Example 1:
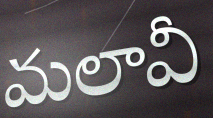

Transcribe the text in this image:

మలావీ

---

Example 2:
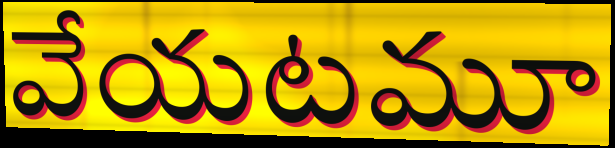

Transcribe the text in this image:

వేయటమూ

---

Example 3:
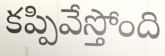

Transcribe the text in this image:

కప్పివేస్తోంది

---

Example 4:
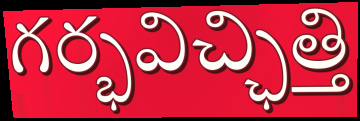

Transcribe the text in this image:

గర్భవిచ్ఛిత్తి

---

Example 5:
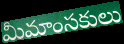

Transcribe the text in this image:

మీమాంసకులు